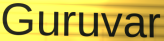
Guruvar